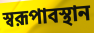
স্বরূপাবস্থান